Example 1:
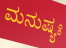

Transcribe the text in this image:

ಮನುಷ್ಯಃ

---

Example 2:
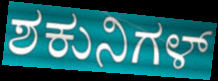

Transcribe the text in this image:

ಶಕುನಿಗಳ್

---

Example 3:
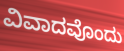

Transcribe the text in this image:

ವಿವಾದವೊಂದು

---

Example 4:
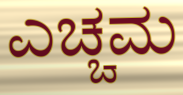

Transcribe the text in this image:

ಎಚ್ಚಮ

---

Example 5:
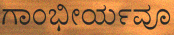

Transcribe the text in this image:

ಗಾಂಭೀರ್ಯವೂ